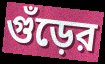
গুঁড়ের